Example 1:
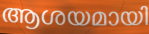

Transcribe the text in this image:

ആശയമായി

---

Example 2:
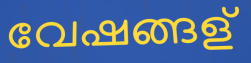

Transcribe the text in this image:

വേഷങ്ങള്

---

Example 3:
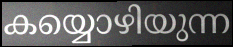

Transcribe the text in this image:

കയ്യൊഴിയുന്ന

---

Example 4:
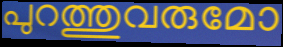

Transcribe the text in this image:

പുറത്തുവരുമോ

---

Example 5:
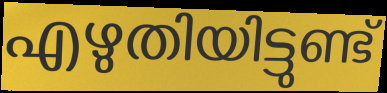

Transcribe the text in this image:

എഴുതിയിട്ടുണ്ട്